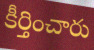
కీర్తించారు